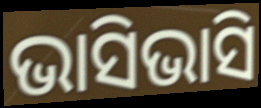
ଭାସିଭାସି